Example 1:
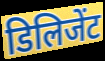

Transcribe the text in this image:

डिलिजेंट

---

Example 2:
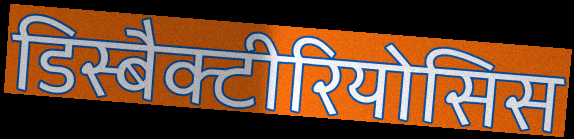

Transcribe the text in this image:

डिस्बैक्टीरियोसिस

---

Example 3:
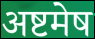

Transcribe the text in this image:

अष्टमेष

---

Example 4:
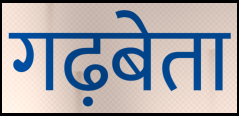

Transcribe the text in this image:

गढ़बेता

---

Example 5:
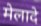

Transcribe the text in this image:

मेलादे